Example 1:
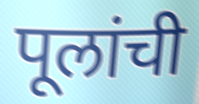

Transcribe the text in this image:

पूलांची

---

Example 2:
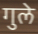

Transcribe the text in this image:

गुले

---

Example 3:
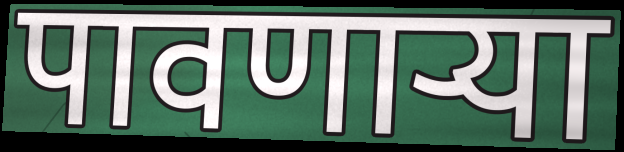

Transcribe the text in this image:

पावणाऱ्या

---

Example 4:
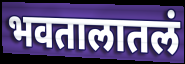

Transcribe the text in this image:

भवतालातलं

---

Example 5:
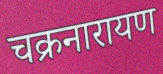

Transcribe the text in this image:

चक्रनारायण